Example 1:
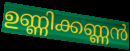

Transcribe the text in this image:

ഉണ്ണിക്കണ്ണൻ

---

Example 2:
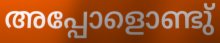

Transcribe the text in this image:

അപ്പോളൊണ്ടു്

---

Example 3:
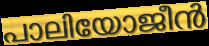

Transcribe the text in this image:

പാലിയോജീൻ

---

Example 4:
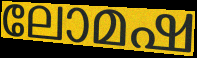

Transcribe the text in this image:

ലോമഷ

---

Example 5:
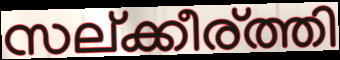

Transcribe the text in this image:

സല്ക്കീര്ത്തി